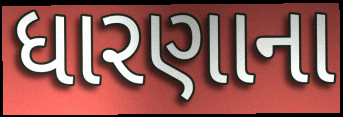
ધારણાના